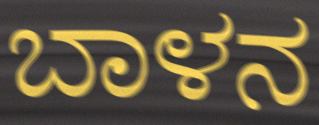
ಬಾಳನ